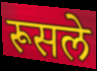
रूसले